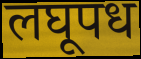
लघूपध